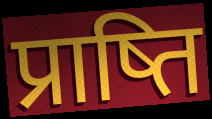
प्राष्ति